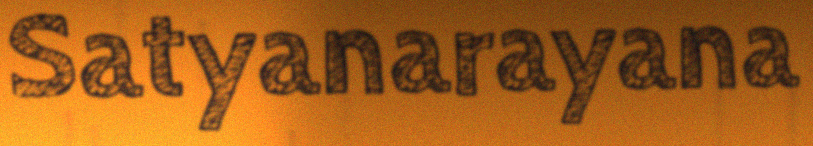
Satyanarayana